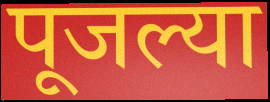
पूजल्या